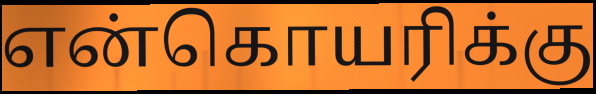
என்கொயரிக்கு